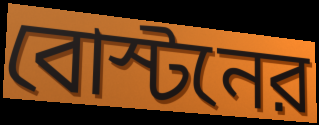
বোস্টনের